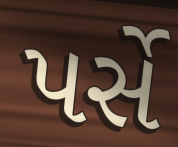
પર્સે